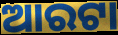
ଆରଟା